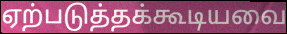
ஏற்படுத்தக்கூடியவை